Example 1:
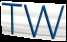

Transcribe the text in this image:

TW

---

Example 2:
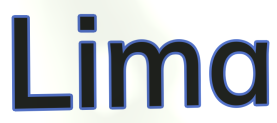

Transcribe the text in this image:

Lima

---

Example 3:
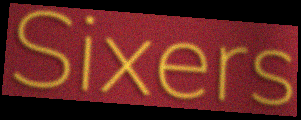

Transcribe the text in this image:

Sixers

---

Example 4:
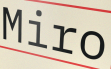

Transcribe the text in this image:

Miro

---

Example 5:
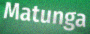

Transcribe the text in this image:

Matunga